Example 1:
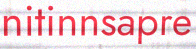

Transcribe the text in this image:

nitinnsapre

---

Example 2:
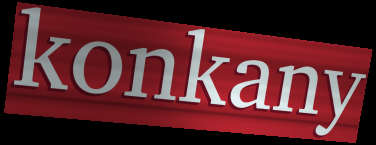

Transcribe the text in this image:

konkany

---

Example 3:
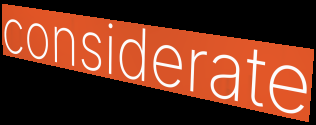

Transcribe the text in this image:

considerate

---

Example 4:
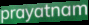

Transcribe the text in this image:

prayatnam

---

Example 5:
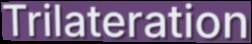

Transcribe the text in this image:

Trilateration